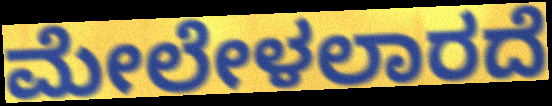
ಮೇಲೇಳಲಾರದೆ